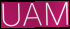
UAM